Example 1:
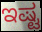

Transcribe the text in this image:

ಇಷ್ಟ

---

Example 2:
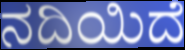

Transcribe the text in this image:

ನದಿಯಿದೆ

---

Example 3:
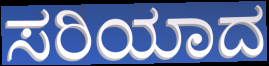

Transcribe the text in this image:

ಸರಿಯಾದ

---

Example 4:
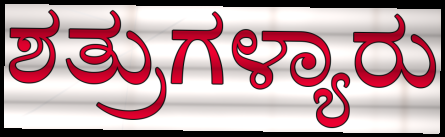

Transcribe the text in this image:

ಶತ್ರುಗಳ್ಯಾರು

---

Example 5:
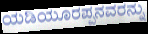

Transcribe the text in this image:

ಯಡಿಯೂರಪ್ಪನವರನ್ನು